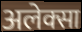
अलेक्‍सा